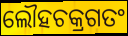
ଲୌହଚକ୍ରଗତଂ